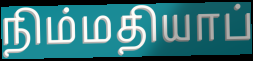
நிம்மதியாப்